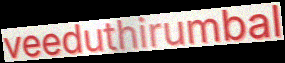
veeduthirumbal